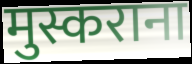
मुस्कराना